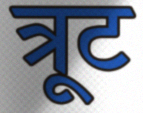
त्रूट